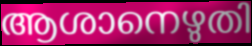
ആശാനെഴുതി